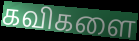
கவிகளை